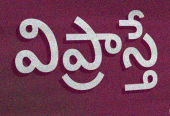
విప్రాస్తే